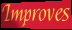
Improves